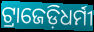
ଟ୍ରାଜେଡ଼ିଧର୍ମୀ